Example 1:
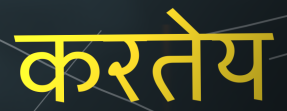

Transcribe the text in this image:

करतेय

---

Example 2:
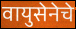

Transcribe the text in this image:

वायुसेनेचे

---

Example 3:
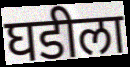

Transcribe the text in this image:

घडीला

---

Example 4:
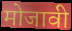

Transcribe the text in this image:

मोजावी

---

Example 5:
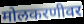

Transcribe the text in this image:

मोलकरणीवर